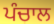
ਪੰਚਾਲ